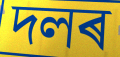
দলৰ